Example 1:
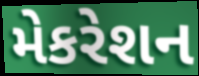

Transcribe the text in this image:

મેકરેશન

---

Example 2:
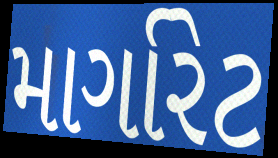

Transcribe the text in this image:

માર્ગારેટ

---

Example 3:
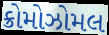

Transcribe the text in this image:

ક્રોમોઝોમલ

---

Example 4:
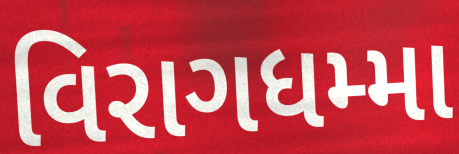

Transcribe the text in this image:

વિરાગધમ્મા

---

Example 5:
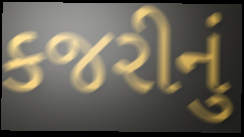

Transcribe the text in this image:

કજરીનું